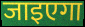
जाइएगा